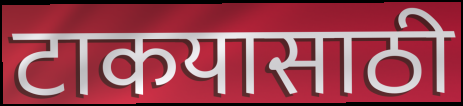
टाकयासाठी